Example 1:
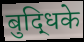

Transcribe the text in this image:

बुद्धिके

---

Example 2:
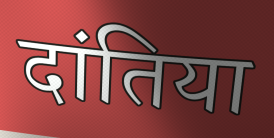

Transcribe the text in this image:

दांतिया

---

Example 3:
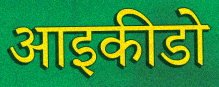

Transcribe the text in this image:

आइकीडो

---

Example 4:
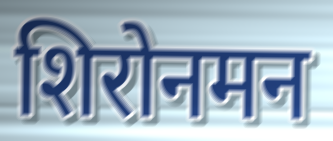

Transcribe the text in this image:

शिरोनमन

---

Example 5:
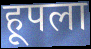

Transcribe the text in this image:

हूपला